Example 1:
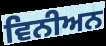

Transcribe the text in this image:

ਵਿਨੀਅਨ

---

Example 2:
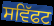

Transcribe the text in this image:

ਸਵਿੱਫਟ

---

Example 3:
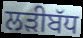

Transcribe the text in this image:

ਲੜੀਬੱਧ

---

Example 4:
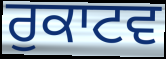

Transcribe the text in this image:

ਰੁਕਾਟਵ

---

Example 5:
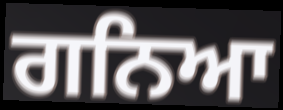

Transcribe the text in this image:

ਗਨਿਆ